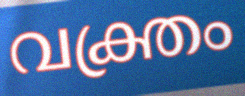
വക്ത്രം